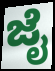
ಜೈ